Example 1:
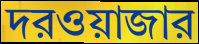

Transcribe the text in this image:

দরওয়াজার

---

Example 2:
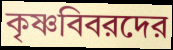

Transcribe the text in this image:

কৃষ্ণবিবরদের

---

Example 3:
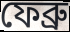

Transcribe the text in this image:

ফেব্রু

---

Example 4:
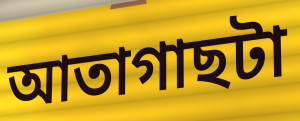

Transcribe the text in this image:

আতাগাছটা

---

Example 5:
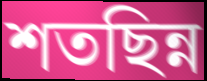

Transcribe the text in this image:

শতছিন্ন